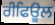
ਰੀਫਿਊਲ